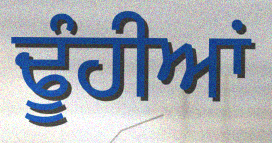
ਢੂੰਹੀਆਂ